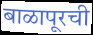
बाळापूरची